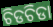
ଚିଡଚିଡା